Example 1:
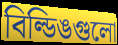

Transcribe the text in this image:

বিল্ডিঙগুলো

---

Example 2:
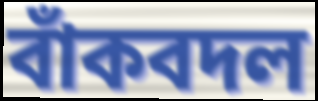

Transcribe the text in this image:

বাঁকবদল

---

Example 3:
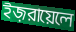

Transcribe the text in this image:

ইজ়রায়েলে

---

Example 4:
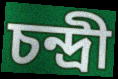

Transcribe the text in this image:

চন্দ্রী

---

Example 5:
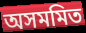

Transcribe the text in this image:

অসমমিত